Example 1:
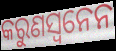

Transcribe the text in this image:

କରୁଣସ୍ଵନେନ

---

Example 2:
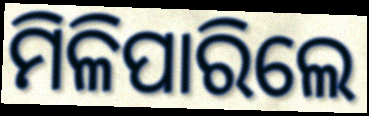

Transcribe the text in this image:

ମିଳିପାରିଲେ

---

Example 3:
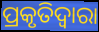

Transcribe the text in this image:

ପ୍ରକୃତିଦ୍ୱାରା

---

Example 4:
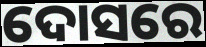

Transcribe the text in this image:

ଦୋସରେ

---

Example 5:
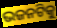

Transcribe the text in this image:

ଭଜନଟିକୁ